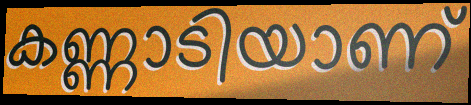
കണ്ണാടിയാണ്